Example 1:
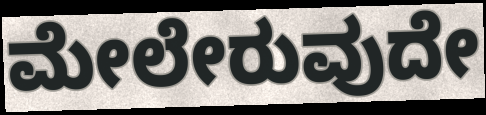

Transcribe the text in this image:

ಮೇಲೇರುವುದೇ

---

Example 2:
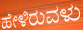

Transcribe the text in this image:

ಹೇಳಿರುವಳು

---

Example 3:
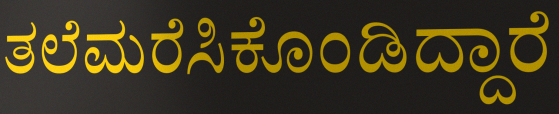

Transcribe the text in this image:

ತಲೆಮರೆಸಿಕೊಂಡಿದ್ದಾರೆ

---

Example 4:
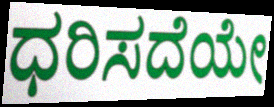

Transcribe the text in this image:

ಧರಿಸದೆಯೇ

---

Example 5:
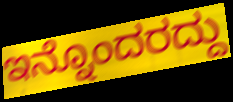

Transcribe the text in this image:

ಇನ್ನೊಂದರದ್ದು